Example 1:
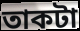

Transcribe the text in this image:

তাকটা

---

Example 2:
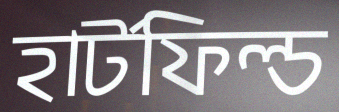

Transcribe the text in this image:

হার্টফিল্ড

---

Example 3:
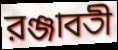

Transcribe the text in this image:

রঞ্জাবতী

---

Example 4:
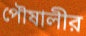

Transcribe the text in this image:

পৌষালীর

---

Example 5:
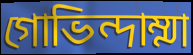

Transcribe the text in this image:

গোভিন্দাম্মা